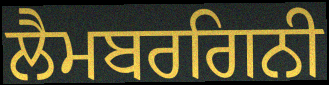
ਲੈਮਬਰਗਿਨੀ